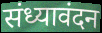
संध्यावंदन